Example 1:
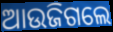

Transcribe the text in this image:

ଆଉଜିଗଲେ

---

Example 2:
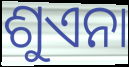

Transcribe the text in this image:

ଶୁଏନା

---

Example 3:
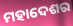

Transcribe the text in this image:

ମହାଦେଶର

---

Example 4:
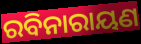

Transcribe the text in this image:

ରବିନାରାୟଣ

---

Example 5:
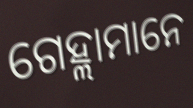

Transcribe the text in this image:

ଗେହ୍ଲାମାନେ